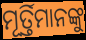
ମୂର୍ତ୍ତିମାନଙ୍କୁ